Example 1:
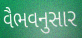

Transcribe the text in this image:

વૈભવનુસાર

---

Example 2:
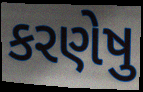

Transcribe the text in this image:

કરણેષુ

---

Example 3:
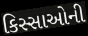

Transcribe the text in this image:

કિસ્સાઓની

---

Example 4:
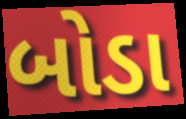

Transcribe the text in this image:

બોડા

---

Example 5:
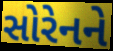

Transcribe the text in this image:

સોરેનને